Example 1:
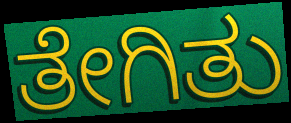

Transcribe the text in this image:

ತೇಗಿತು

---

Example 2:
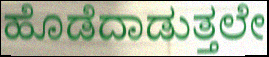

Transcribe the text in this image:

ಹೊಡೆದಾಡುತ್ತಲೇ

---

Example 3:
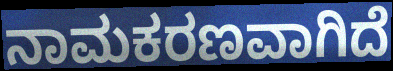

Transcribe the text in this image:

ನಾಮಕರಣವಾಗಿದೆ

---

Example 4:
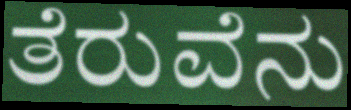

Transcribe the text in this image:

ತೆರುವೆನು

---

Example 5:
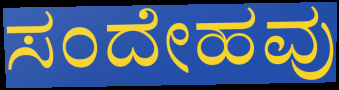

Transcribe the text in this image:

ಸಂದೇಹವು